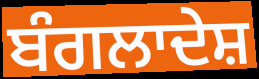
ਬੰਗਲਾਦੇਸ਼